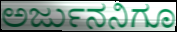
ಅರ್ಜುನನಿಗೂ